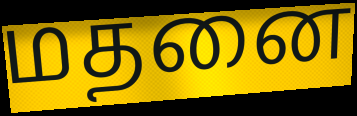
மதனை